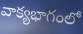
వాక్యభాగంలో